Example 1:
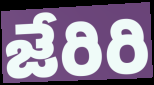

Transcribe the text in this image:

జేరిరి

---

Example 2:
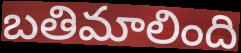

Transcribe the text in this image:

బతిమాలింది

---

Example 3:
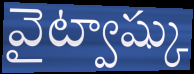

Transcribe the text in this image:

వైట్వాష్కు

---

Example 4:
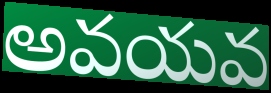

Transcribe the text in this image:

అవయవ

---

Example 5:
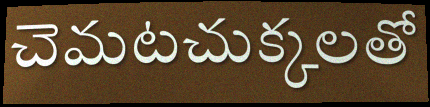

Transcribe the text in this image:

చెమటచుక్కలతో